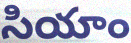
సియాం